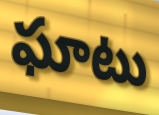
ఘాటు